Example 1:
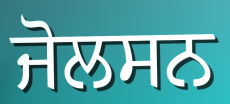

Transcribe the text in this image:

ਜੋਲਸਨ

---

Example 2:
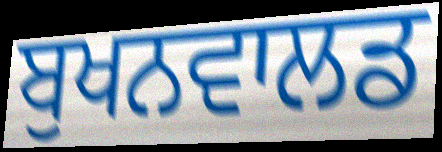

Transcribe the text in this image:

ਬੁਖਨਵਾਲਡ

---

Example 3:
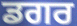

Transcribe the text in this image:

ਡਗਰ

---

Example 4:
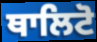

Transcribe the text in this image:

ਥਾਲਿਟੋ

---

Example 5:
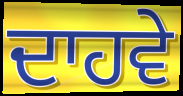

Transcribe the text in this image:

ਦਾਹਵੇ